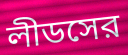
লীডসের